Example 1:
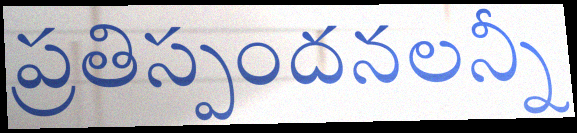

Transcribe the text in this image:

ప్రతిస్పందనలన్నీ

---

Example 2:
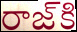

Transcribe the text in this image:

రాజ్‌కి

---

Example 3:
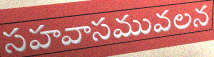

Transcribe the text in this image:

సహవాసమువలన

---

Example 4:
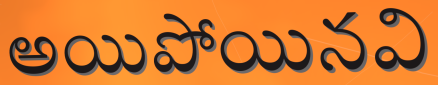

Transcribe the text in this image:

అయిపోయినవి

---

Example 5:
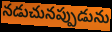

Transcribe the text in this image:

నడుచునప్పుడును